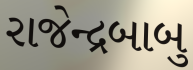
રાજેન્દ્રબાબુ